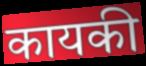
कायकी